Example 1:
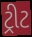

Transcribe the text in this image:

ટ્રીટ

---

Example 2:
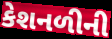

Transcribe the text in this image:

કેશનળીની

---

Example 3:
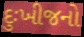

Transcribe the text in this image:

દુઃખીજનો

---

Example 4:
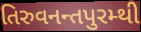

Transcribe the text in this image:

તિરુવનન્તપુરમ્થી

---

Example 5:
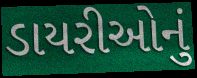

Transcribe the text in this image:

ડાયરીઓનું